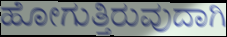
ಹೋಗುತ್ತಿರುವುದಾಗಿ